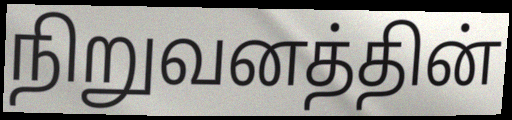
நிறுவனத்தின்